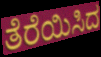
ತೆರೆಯಿಸಿದ